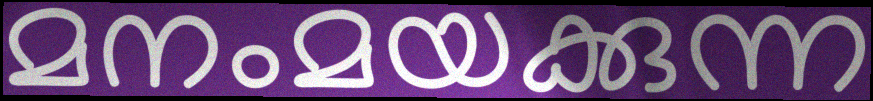
മനംമയക്കുന്ന